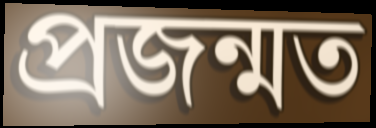
প্ৰজন্মত